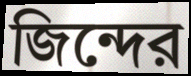
জিন্দের